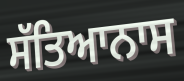
ਸੱਤਿਆਨਾਸ